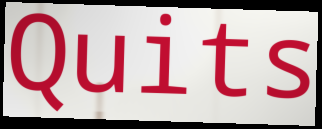
Quits